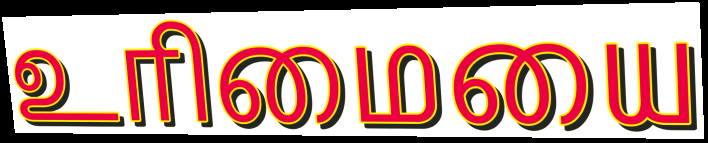
உரிமையை